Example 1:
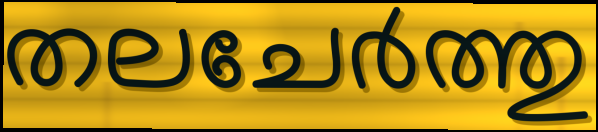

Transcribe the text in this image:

തലചേർത്തു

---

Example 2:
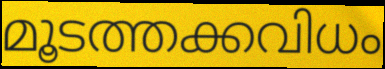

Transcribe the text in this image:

മൂടത്തക്കവിധം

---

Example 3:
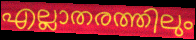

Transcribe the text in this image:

എല്ലാതരത്തിലും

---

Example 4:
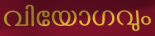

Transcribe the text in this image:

വിയോഗവും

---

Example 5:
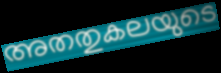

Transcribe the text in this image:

അതതുകലയുടെ